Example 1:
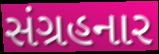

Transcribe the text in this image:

સંગ્રહનાર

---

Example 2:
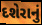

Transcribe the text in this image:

દશેરાનું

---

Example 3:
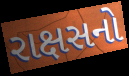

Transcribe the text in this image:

રાક્ષસનો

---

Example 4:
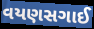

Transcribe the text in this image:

વયણસગાઈ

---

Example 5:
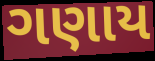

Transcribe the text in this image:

ગણાય